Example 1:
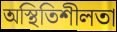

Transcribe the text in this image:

অস্থিতিশীলতা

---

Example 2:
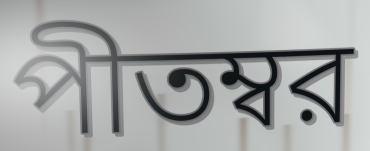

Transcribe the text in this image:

পীতম্বর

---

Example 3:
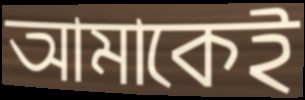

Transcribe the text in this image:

আমাকেই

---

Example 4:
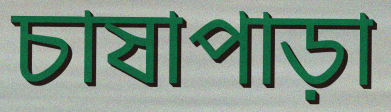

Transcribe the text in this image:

চাষাপাড়া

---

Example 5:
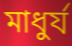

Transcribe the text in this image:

মাধুর্য